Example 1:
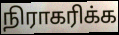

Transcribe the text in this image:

நிராகரிக்க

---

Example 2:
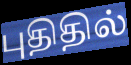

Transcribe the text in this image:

புதிதில்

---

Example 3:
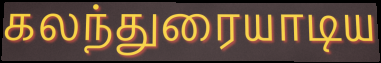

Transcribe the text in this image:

கலந்துரையாடிய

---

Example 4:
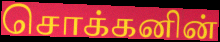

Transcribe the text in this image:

சொக்கனின்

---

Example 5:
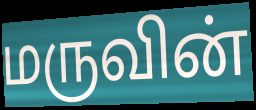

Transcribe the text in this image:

மருவின்